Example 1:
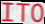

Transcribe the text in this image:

ITO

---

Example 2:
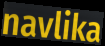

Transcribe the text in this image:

navlika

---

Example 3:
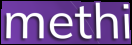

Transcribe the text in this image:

methi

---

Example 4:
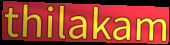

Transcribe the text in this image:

thilakam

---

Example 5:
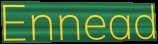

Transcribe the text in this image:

Ennead